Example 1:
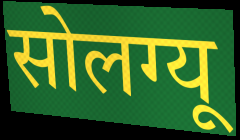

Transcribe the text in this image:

सोलग्यू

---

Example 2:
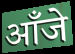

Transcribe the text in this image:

आँजे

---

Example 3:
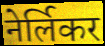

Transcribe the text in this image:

नेर्लिकर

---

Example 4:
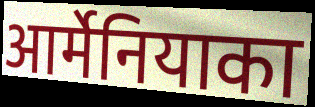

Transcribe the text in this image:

आर्मेनियाका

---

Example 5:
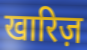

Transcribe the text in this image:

खारिज़